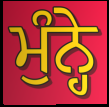
ਮੁੰਨ੍ਹੇ